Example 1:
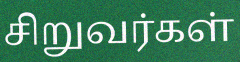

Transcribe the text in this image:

சிறுவர்கள்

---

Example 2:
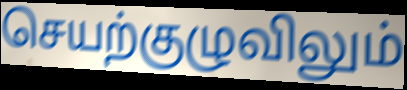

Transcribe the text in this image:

செயற்குழுவிலும்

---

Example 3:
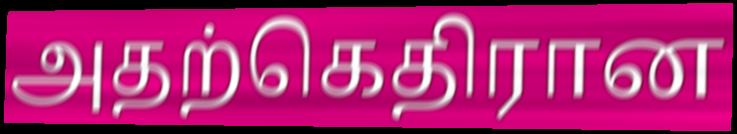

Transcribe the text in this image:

அதற்கெதிரான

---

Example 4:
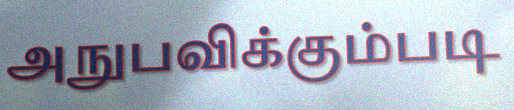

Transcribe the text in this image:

அநுபவிக்கும்படி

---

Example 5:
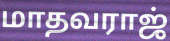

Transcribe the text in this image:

மாதவராஜ்